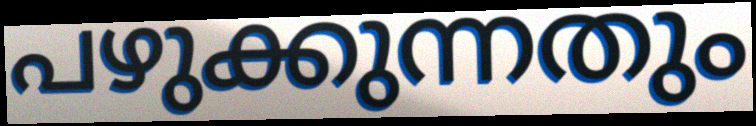
പഴുക്കുന്നതും